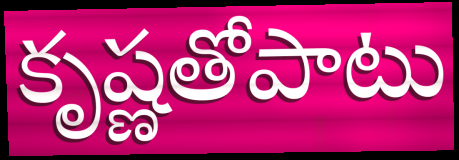
కృష్ణతోపాటు